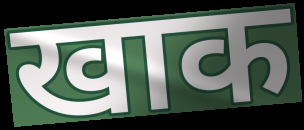
खाक